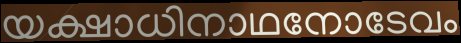
യക്ഷാധിനാഥനോടേവം